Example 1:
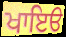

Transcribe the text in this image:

ਖਾਇੳ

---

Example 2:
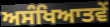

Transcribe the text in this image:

ਅਸੰਖਿਆਤਵੇਂ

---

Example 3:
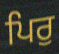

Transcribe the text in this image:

ਪਿਰੁ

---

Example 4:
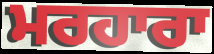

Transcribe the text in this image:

ਮਰਹਾਰਾ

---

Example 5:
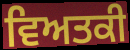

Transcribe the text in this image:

ਵਿਅਤਕੀ